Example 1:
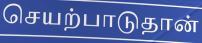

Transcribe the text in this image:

செயற்பாடுதான்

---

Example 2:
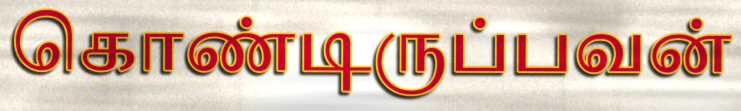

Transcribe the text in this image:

கொண்டிருப்பவன்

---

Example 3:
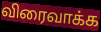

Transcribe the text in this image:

விரைவாக்க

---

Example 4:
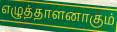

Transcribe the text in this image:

எழுத்தாளனாகும்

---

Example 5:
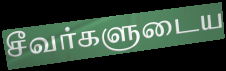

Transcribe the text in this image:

சீவர்களுடைய